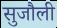
सुजौली